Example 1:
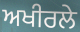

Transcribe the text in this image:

ਅਖੀਰਲੇ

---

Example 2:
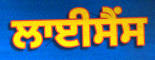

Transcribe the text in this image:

ਲਾਈਸੈਂਸ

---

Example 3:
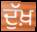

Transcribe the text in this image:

ਦੁੱਖ਼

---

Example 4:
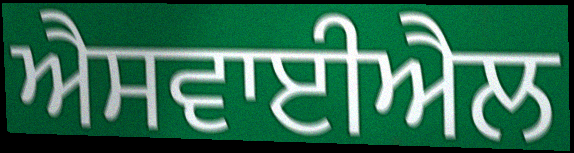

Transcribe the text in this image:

ਐਸਵਾਈਐਲ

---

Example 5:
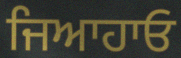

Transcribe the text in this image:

ਜਿਆਹਾਓ